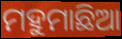
ମହୁମାଛିଆ